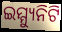
ଇମ୍ମ୍ୟୁନିଟି